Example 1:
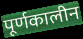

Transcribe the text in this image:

पूर्णकालीन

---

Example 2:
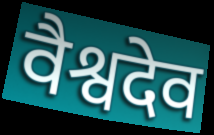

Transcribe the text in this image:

वैश्वदेव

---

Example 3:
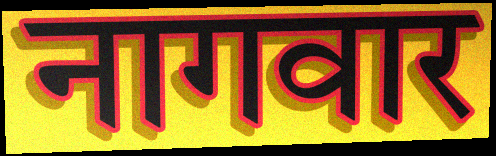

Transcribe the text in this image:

नागवार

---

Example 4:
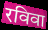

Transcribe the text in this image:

रविवा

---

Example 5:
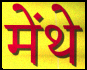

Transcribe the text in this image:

मेंथे